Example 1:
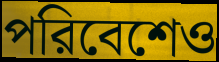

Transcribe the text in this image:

পরিবেশেও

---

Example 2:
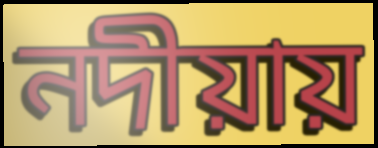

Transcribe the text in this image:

নদীয়ায়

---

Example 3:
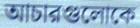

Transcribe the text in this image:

আচারগুলোকে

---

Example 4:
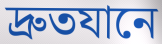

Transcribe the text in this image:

দ্রুতযানে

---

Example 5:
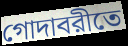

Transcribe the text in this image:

গোদাবরীতে